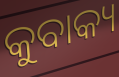
କୁବାକ୍ୟ